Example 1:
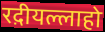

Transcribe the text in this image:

रद़ीयल्लाहो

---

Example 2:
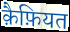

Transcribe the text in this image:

क़ैफ़ियत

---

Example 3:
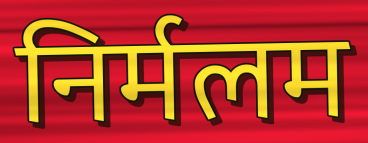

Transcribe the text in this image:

निर्मलम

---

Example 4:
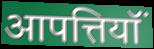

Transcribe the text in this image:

आपत्तियॉं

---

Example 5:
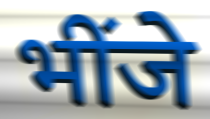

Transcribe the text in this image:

भींजे